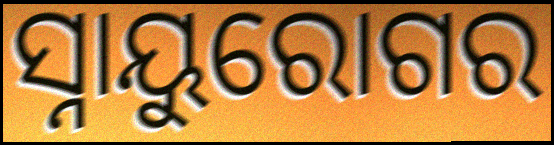
ସ୍ନାୟୁରୋଗର